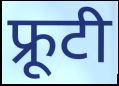
फ्रूटी